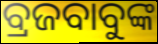
ବ୍ରଜବାବୁଙ୍କ